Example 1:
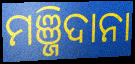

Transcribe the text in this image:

ମଞ୍ଜିଦାନା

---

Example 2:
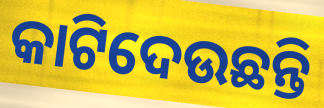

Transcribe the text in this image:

କାଟିଦେଉଛନ୍ତି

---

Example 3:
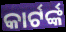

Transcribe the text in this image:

କାର୍ଟର୍ଙ୍କ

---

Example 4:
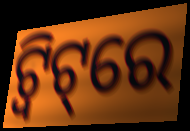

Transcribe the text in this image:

ଟ୍ବିଟ୍‌ରେ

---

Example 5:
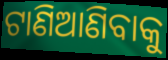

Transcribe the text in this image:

ଟାଣିଆଣିବାକୁ